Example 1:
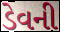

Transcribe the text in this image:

ડેવની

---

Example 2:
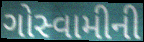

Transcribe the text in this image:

ગોસ્વામીની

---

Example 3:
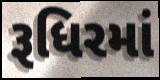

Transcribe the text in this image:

રૂધિરમાં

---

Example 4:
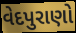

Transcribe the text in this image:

વેદપુરાણો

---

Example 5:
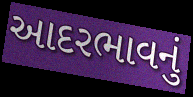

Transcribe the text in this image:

આદરભાવનું